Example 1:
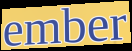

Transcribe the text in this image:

ember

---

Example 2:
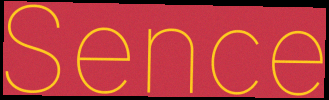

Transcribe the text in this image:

Sence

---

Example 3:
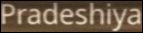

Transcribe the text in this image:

Pradeshiya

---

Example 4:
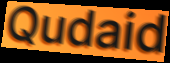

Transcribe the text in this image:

Qudaid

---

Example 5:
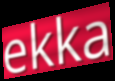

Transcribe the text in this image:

ekka